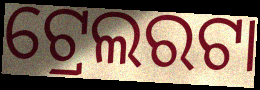
ଟ୍ରେଲରଟା